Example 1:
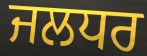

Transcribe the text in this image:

ਜਲਧਰ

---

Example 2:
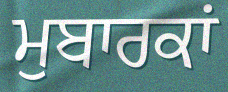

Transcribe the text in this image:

ਮੁਬਾਰਕਾਂ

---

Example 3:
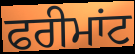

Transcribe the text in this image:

ਫਰੀਮਾਂਟ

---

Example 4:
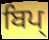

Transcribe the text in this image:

ਬਿਪ੍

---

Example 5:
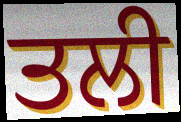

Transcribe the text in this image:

ਤਲੀ